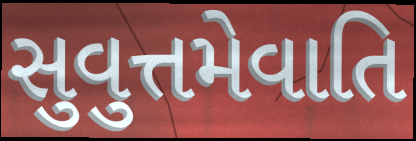
સુવુત્તમેવાતિ